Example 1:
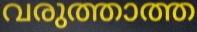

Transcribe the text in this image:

വരുത്താത്ത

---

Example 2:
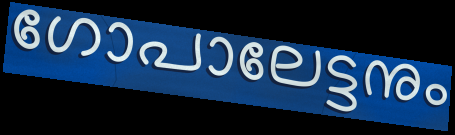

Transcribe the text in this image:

ഗോപാലേട്ടനും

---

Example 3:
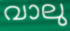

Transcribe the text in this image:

വാലു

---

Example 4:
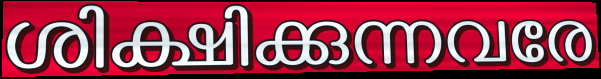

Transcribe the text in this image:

ശിക്ഷിക്കുന്നവരേ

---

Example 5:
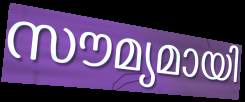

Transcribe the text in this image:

സൗമ്യമായി